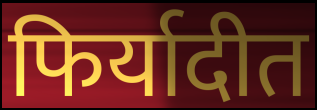
फिर्यादीत